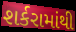
શર્કરામાંથી